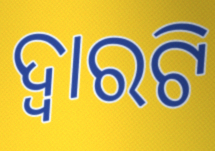
ଦ୍ୱାରଟି